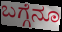
ಬಗ್ಗೆನೂ